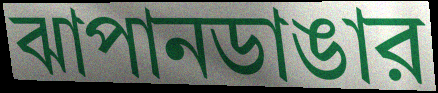
ঝাপানডাঙার